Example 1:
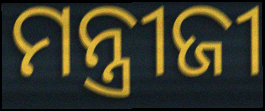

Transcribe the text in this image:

ମନ୍ତ୍ରୀଜୀ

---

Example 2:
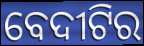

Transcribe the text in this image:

ବେଦୀଟିର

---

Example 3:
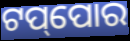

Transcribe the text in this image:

ଟପ୍‌ପୋର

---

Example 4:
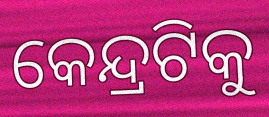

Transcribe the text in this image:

କେନ୍ଦ୍ରଟିକୁ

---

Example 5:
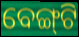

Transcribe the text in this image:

ବେଙ୍ଗ୍‌ଟି